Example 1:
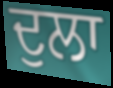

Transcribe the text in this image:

ਦੁਲਾ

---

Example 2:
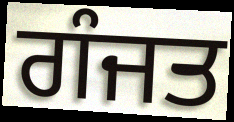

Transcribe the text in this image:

ਗੰਜਤ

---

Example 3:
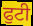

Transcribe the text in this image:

ਫੁਟੀ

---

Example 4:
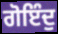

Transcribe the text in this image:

ਗੋਇੰਦੁ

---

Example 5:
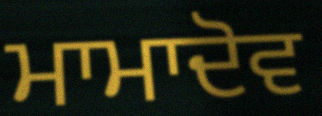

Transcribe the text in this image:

ਮਾਮਾਦੋਵ